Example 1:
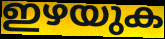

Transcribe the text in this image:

ഇഴയുക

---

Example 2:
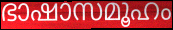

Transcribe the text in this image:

ഭാഷാസമൂഹം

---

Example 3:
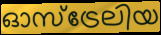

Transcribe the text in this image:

ഓസ്ട്രേലിയ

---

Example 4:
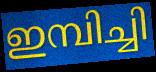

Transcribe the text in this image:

ഇമ്പിച്ചി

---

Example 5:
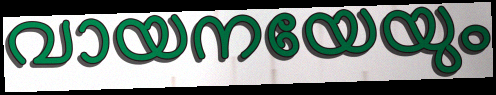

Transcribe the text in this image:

വായനയേയും